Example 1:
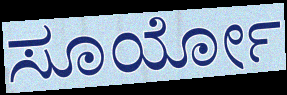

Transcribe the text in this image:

ಸೂರ್ಯೋ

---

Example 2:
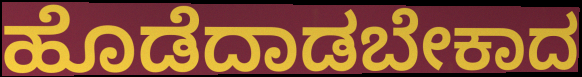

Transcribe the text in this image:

ಹೊಡೆದಾಡಬೇಕಾದ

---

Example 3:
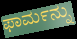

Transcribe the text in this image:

ಫಾರ್ಮನ್ನು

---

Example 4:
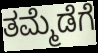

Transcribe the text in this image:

ತಮ್ಮೆಡೆಗೆ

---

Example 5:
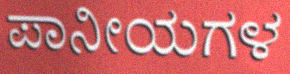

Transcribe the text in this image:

ಪಾನೀಯಗಳ